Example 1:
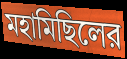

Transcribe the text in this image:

মহামিছিলের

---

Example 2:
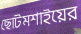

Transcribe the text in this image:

ছোটমশাইয়ের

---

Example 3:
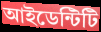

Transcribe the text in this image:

আইডেন্টিটি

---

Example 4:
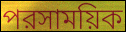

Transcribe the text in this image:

পরসাময়িক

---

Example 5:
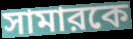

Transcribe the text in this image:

সামারকে